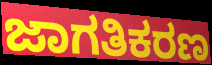
ಜಾಗತಿಕರಣ